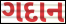
ગદાન